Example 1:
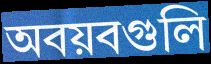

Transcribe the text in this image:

অবয়বগুলি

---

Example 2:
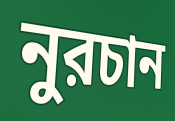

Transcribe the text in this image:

নুরচান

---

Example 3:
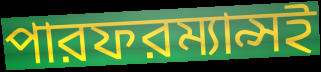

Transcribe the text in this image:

পারফরম্যান্সই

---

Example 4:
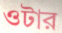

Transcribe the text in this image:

ওটার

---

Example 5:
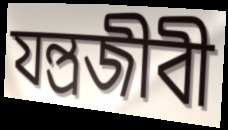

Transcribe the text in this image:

যন্ত্রজীবী